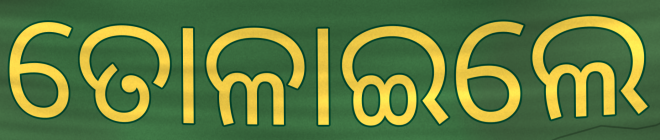
ତୋଳାଇଲେ